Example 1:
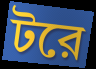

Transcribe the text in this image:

টরে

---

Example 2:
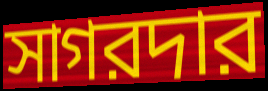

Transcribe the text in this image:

সাগরদার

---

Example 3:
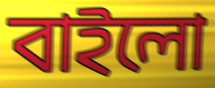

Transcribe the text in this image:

বাইলো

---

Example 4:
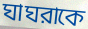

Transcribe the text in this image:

ঘাঘরাকে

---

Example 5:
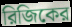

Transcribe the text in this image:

রিজিকের